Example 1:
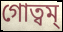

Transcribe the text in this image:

গোত্বম্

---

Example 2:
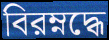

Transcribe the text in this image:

বিরম্নদ্ধে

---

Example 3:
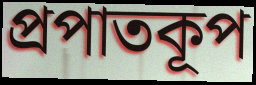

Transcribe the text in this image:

প্রপাতকূপ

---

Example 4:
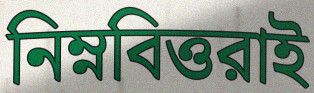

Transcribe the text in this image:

নিম্নবিত্তরাই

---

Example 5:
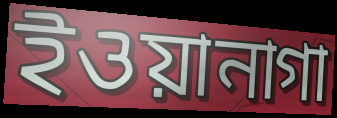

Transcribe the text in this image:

ইওয়ানাগা